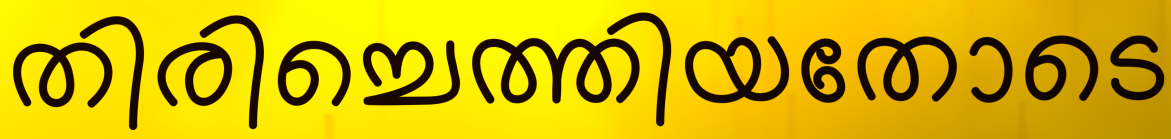
തിരിച്ചെത്തിയതോടെ